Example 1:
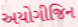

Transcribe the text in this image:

અયોગીજિન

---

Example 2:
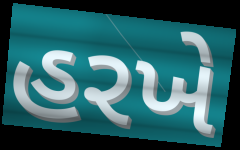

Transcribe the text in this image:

હરખે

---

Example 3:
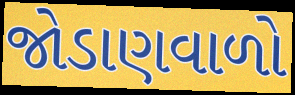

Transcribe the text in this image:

જોડાણવાળો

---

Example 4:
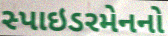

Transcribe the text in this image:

સ્પાઇડરમેનનો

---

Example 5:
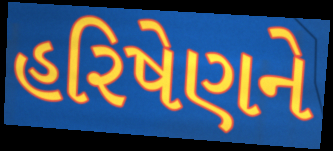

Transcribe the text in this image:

હરિષેણને